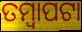
ତମ୍ବାପଟା